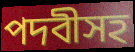
পদবীসহ